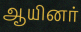
ஆயினர்